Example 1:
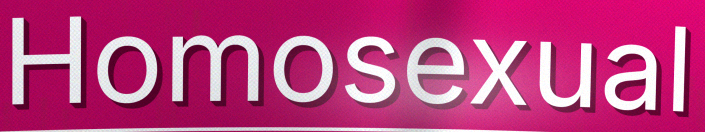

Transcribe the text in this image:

Homosexual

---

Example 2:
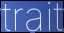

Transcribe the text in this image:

trait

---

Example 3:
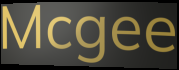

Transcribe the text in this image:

Mcgee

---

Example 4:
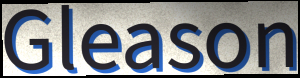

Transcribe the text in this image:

Gleason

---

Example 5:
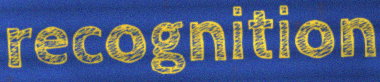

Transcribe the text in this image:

recognition